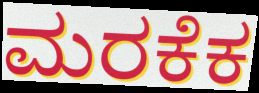
ಮರಕೆಕ